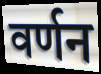
वर्णन